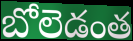
బోలెడంత